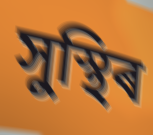
সুস্থিৰ